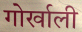
गोर्खाली